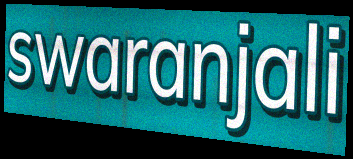
swaranjali